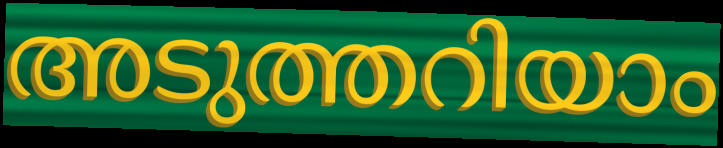
അടുത്തറിയാം